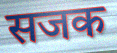
सजक